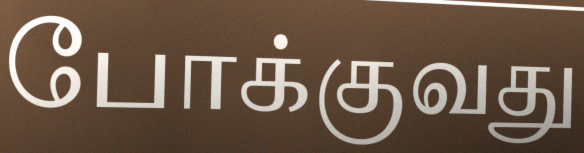
போக்குவது